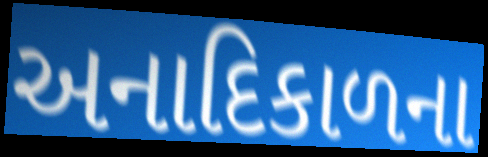
અનાદિકાળના